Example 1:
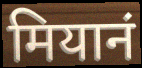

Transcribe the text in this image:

मियानं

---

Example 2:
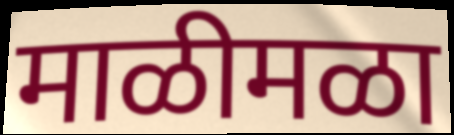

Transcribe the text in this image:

माळीमळा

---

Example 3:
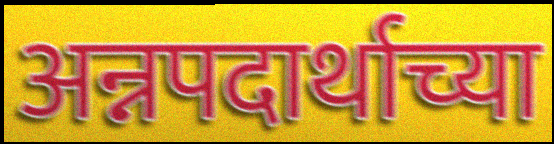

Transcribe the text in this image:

अन्नपदार्थाच्या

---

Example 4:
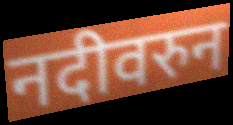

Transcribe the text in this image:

नदीवरुन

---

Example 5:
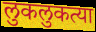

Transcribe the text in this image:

लुकलुकत्या